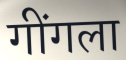
गींगला